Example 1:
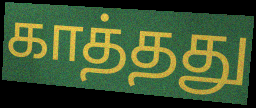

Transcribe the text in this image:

காத்தது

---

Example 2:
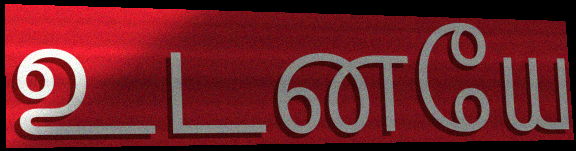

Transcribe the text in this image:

உடனயே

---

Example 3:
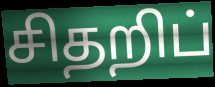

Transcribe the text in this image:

சிதறிப்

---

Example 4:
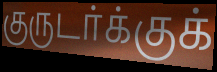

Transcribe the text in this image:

குருடர்க்குக்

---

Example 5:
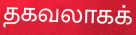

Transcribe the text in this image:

தகவலாகக்